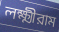
লক্ষ্মীরাম